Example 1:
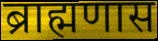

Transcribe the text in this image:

ब्राह्मणास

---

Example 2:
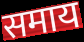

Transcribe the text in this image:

समाय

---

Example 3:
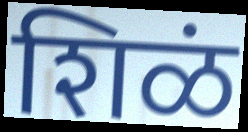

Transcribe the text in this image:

शिळं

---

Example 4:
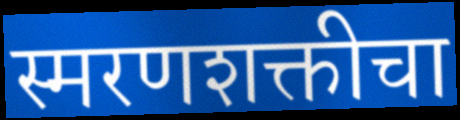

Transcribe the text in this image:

स्मरणशक्तीचा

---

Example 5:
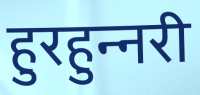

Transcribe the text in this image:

हुरहुन्नरी